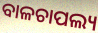
ବାଳଚାପଲ୍ୟ